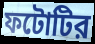
ফটোটির